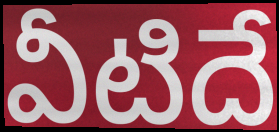
వీటిదే